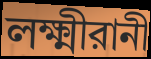
লক্ষ্মীরানী